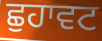
ਛੁਹਾਵਟ